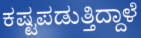
ಕಷ್ಟಪಡುತ್ತಿದ್ದಾಳೆ